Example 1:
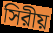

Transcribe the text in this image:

সিরীয়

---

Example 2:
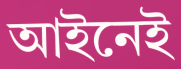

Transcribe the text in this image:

আইনেই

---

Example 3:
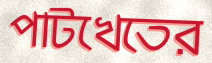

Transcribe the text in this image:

পাটখেতের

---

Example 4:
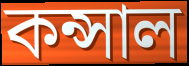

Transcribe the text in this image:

কন্সাল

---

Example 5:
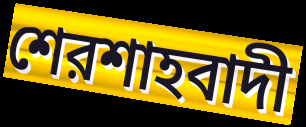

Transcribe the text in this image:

শেরশাহবাদী